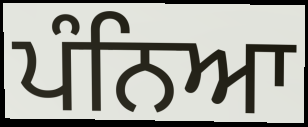
ਪੰਨਿਆ